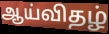
ஆய்விதழ்